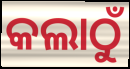
କଲାଠୁଁ